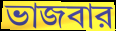
ভাজবার